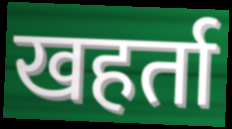
खहर्ता